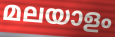
മലയാളം